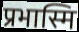
प्रभास्मि